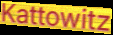
Kattowitz